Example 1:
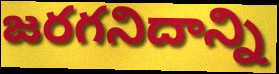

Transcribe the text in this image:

జరగనిదాన్ని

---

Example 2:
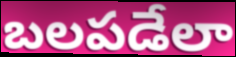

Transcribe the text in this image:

బలపడేలా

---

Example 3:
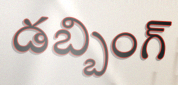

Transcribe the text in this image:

డబ్బింగ్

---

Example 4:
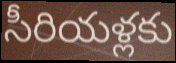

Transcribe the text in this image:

సీరియళ్లకు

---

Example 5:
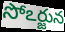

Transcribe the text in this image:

సోఽర్జున